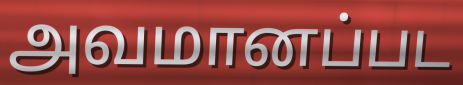
அவமானப்பட